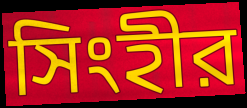
সিংহীর